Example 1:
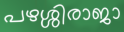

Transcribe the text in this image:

പഴശ്ശിരാജാ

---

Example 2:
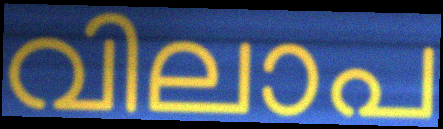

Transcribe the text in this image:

വിലാപ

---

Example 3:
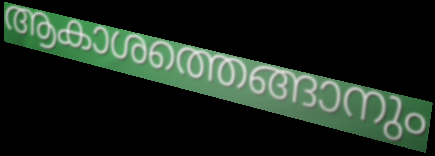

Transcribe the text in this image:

ആകാശത്തെങ്ങാനും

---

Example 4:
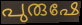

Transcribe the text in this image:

പുരുഷേ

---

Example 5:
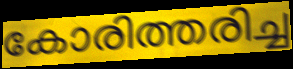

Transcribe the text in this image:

കോരിത്തരിച്ച